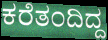
ಕರೆತಂದಿದ್ದ